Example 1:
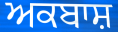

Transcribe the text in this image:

ਅਕਬਾਸ਼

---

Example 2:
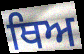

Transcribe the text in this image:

ਥਿਅ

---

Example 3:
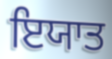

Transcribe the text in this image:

ਇਯਾਤ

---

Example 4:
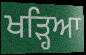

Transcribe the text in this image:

ਖੜ੍ਹਿਆ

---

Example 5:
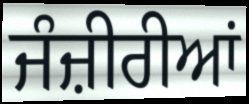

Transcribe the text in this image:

ਜੰਜ਼ੀਰੀਆਂ